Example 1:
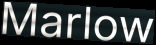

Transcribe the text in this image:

Marlow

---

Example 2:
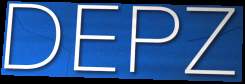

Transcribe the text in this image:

DEPZ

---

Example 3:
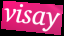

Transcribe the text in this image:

visay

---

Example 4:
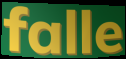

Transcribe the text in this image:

falle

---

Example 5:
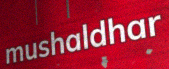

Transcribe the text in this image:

mushaldhar